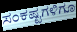
ಸಂಕಷ್ಟಗಳಿಗೂ